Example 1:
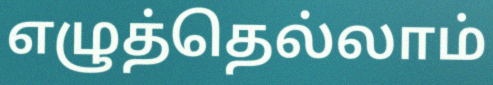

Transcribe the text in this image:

எழுத்தெல்லாம்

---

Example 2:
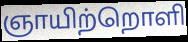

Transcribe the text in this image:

ஞாயிற்றொளி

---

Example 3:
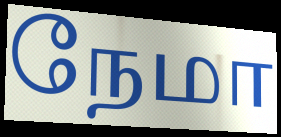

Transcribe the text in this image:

நேமா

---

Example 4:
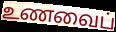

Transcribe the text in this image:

உணவைப்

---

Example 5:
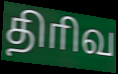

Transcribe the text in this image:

திரிவ